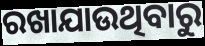
ରଖାଯାଉଥିବାରୁ